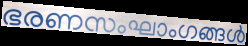
ഭരണസംഘാംഗങ്ങൾ